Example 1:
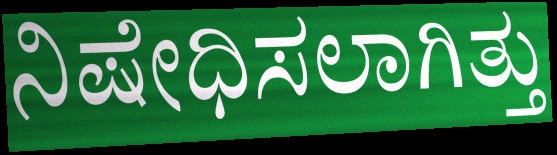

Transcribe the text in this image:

ನಿಷೇಧಿಸಲಾಗಿತ್ತು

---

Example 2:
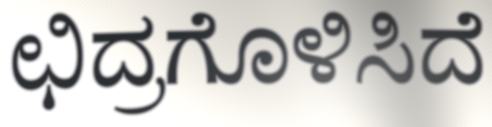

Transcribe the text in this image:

ಛಿದ್ರಗೊಳಿಸಿದೆ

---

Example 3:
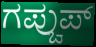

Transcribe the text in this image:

ಗಪ್ಚುಪ್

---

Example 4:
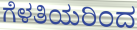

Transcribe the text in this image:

ಗೆಳತಿಯರಿಂದ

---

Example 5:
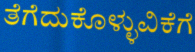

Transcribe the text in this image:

ತೆಗೆದುಕೊಳ್ಳುವಿಕೆಗೆ